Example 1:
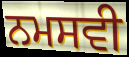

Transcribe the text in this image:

ਨਮਸਵੀ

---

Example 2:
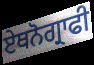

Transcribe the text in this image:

ਏਥਨੋਗ੍ਰਾਫੀ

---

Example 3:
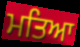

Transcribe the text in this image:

ਮਤਿਆ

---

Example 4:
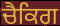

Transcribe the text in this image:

ਚੈਕਿਗ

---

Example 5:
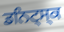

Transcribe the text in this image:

ਡਨਿਟ੍ਸ੍ਕ